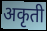
अकृती